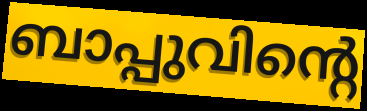
ബാപ്പുവിന്റെ